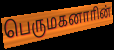
பெருமகனாரின்